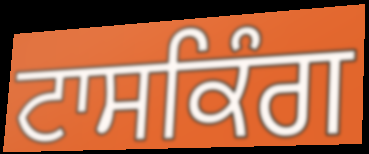
ਟਾਸਕਿੰਗ